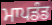
ਮਾਪਡੰਡ